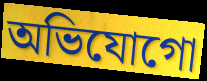
অভিযোগো